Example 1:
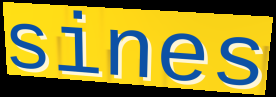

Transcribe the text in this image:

sines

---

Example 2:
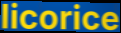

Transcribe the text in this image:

licorice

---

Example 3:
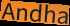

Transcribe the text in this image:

Andha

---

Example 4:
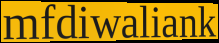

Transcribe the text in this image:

mfdiwaliank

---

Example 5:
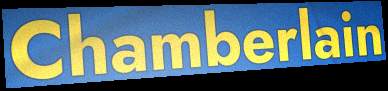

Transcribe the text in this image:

Chamberlain